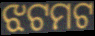
ଝଟମଟ